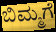
ಬಿಮ್ಮಗೆ